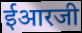
ईआरजी